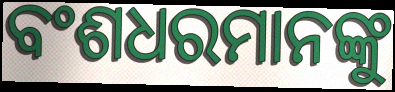
ବଂଶଧରମାନଙ୍କୁ